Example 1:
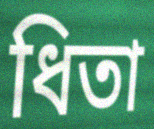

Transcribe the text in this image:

ধিতা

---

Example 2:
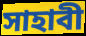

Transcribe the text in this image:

সাহাবী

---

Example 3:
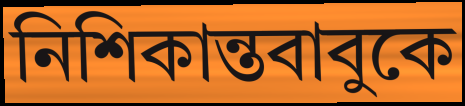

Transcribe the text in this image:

নিশিকান্তবাবুকে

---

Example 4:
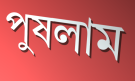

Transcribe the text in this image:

পুষলাম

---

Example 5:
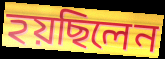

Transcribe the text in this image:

হয়ছিলেন